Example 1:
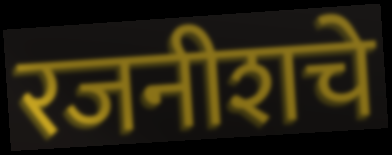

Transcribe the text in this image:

रजनीशचे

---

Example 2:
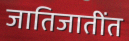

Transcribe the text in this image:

जातिजातींत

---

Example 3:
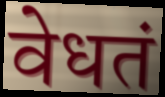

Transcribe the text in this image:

वेधतं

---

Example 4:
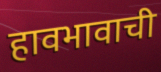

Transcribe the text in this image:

हावभावाची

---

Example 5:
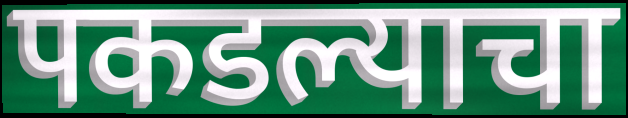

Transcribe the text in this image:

पकडल्याचा